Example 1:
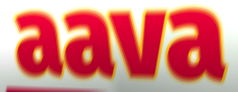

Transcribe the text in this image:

aava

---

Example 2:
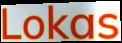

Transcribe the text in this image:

Lokas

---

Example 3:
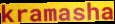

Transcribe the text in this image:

kramasha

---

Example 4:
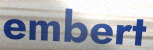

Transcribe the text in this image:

embert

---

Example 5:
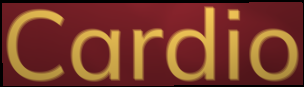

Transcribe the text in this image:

Cardio